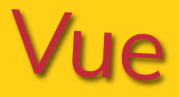
Vue